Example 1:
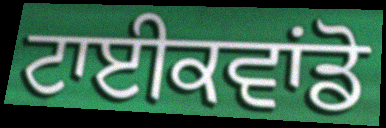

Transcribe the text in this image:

ਟਾਈਕਵਾਂਡੋ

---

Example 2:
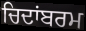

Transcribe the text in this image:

ਚਿਦਾਂਬਰਮ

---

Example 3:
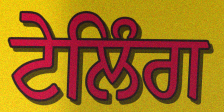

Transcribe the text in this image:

ਟੇਲਿੰਗ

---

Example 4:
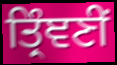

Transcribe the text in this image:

ਤ੍ਰਿੰਞਣੀਂ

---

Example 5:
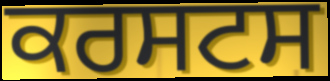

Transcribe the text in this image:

ਕਰਸਟਸ